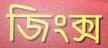
জিংক্স